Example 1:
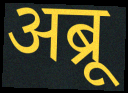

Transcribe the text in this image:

अब्रू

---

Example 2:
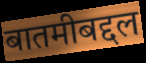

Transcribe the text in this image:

बातमीबद्दल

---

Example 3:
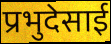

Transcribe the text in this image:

प्रभुदेसाई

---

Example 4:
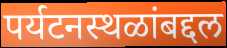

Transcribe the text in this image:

पर्यटनस्थळांबद्दल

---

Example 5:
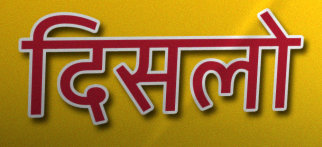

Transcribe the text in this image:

दिसलो